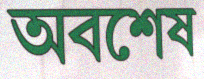
অবশেষ